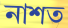
নাশত